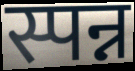
स्पन्न